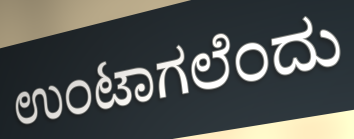
ಉಂಟಾಗಲೆಂದು